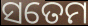
ସତେମ